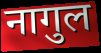
नागुल